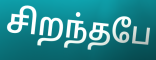
சிறந்தபே